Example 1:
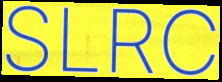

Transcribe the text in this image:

SLRC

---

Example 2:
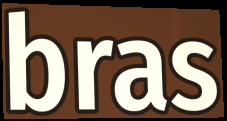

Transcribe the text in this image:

bras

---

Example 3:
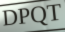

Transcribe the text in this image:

DPQT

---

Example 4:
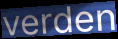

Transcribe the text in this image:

verden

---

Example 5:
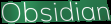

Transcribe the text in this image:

Obsidian